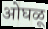
ओघळू